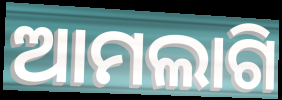
ଆମଲାଗି